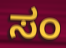
ಸಂ